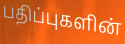
பதிப்புகளின்